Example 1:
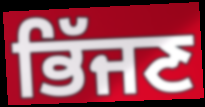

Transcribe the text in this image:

ਭਿੱਜਣ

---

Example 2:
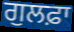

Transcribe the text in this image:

ਗੁਲਫ਼ਾ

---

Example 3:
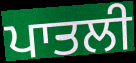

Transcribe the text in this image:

ਪਾਤਲੀ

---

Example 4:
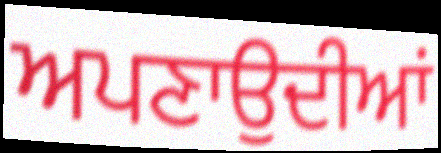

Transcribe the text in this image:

ਅਪਣਾਉਦੀਆਂ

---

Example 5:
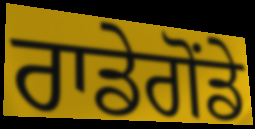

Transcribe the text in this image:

ਰਾਡੇਗੋਂਡੇ